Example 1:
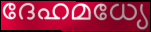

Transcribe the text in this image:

ദേഹമധ്യേ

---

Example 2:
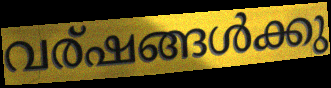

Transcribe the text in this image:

വര്ഷങ്ങൾക്കു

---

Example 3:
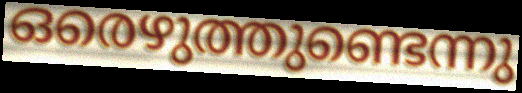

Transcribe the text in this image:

ഒരെഴുത്തുണ്ടെന്നു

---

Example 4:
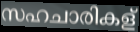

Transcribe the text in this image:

സഹചാരികള്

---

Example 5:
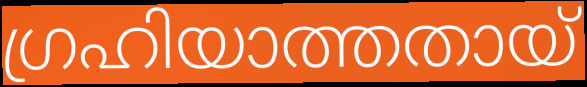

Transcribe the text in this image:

ഗ്രഹിയാത്തതായ്